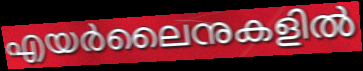
എയർലൈനുകളിൽ